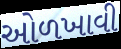
ઓળખાવી